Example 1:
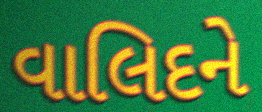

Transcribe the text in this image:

વાલિદને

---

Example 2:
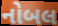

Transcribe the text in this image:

નોબલ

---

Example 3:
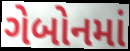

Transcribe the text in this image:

ગેબોનમાં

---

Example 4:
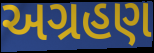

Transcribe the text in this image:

અગ્રહણ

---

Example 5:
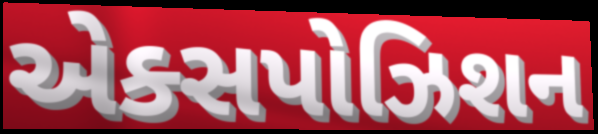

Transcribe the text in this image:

એક્સપોઝિશન